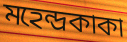
মহেন্দ্রকাকা